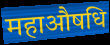
महाऔषधि